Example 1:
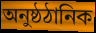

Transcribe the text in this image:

অনুষ্ঠঠানিক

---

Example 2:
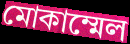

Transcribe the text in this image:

মোকাম্মেল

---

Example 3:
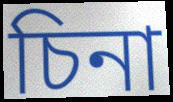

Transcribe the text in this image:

চিনা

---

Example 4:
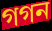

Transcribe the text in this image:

গগন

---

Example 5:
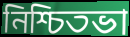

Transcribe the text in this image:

নিশ্চিতভা